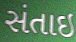
સંતાઇ